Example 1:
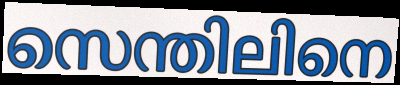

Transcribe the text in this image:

സെന്തിലിനെ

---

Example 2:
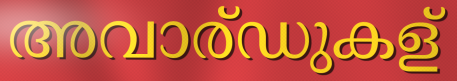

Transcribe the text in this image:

അവാര്ഡുകള്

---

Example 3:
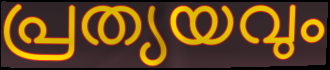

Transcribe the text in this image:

പ്രത്യയവും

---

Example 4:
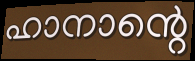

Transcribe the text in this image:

ഹാനാന്റെ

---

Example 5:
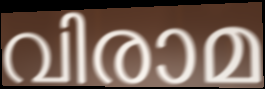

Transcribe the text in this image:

വിരാമ